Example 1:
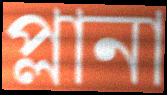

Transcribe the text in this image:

প্লানা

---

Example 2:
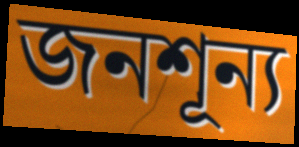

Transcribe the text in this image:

জনশূন্য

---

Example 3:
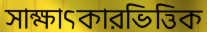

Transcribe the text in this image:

সাক্ষাৎকারভিত্তিক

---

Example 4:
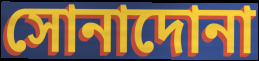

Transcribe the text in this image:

সোনাদোনা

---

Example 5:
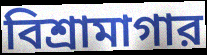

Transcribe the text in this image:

বিশ্রামাগার